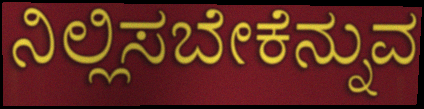
ನಿಲ್ಲಿಸಬೇಕೆನ್ನುವ